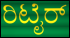
ರಿಟೈರ್